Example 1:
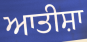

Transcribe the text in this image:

ਆਤੀਸ਼ਾ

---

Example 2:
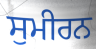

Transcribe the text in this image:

ਸੁਮੀਰਨ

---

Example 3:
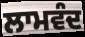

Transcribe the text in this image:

ਲਾਮਵੰਦ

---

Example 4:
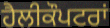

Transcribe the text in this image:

ਹੈਲੀਕੌਪਟਰਾਂ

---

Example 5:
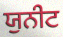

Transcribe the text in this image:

ਯੁਨੀਟ